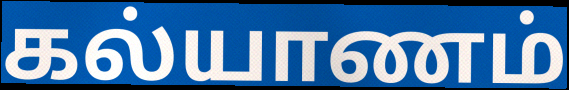
கல்யாணம்